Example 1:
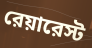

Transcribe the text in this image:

রেয়ারেস্ট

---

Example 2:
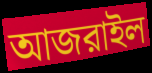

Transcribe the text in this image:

আজরাইল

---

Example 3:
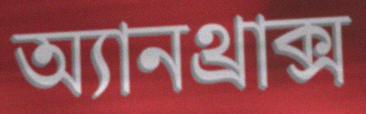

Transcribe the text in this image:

অ্যানথ্রাক্স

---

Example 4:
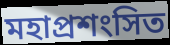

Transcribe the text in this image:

মহাপ্রশংসিত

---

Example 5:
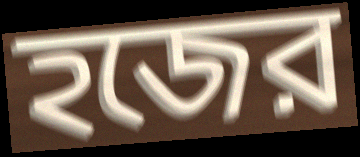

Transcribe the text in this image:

হজের